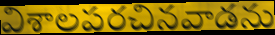
విశాలపరచినవాడను